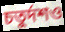
চতুর্দশও